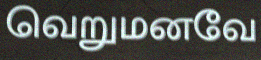
வெறுமனவே